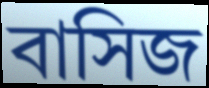
বাসিজ